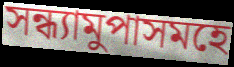
সন্ধ্যামুপাসমহে